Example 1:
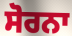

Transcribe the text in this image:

ਸੋਰਨਾ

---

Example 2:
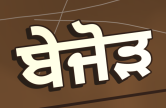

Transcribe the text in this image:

ਬੇਜੋੜ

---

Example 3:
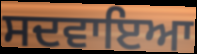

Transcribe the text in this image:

ਸਦਵਾਇਆ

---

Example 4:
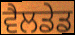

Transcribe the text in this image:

ਵੈਲਡੇਡ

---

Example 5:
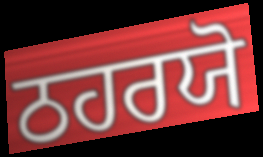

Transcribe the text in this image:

ਠਹਰਯੋ